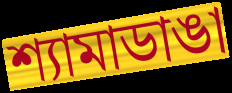
শ্যামাডাঙা